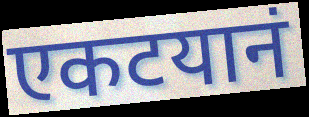
एकटयानं